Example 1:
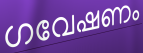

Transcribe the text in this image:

ഗവേഷണം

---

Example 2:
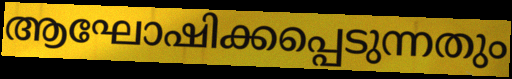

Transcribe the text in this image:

ആഘോഷിക്കപ്പെടുന്നതും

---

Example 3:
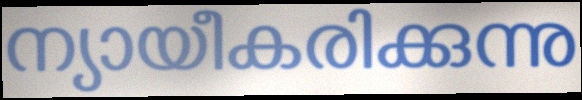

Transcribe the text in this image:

ന്യായീകരിക്കുന്നു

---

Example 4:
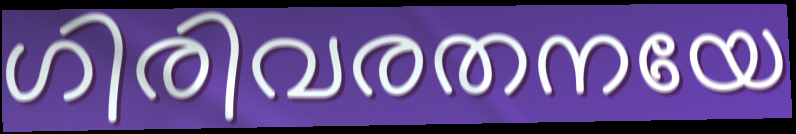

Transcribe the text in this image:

ഗിരിവരതനയേ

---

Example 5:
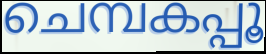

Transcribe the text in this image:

ചെമ്പകപ്പൂ